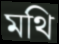
মথি